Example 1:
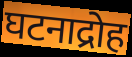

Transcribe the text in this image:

घटनाद्रोह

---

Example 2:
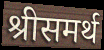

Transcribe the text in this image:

श्रीसमर्थ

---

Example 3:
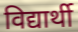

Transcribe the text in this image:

विद्यार्थी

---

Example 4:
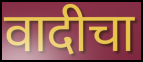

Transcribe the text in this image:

वादीचा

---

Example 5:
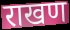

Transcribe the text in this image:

राखण